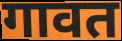
गावत